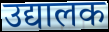
उद्यालक